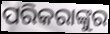
ପରିକରାଙ୍କୁର